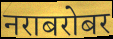
नराबरोबर